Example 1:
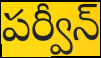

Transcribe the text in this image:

పర్వీన్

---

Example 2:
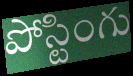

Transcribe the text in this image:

పోస్టింగు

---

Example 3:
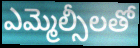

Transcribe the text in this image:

ఎమ్మెల్సీలతో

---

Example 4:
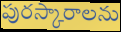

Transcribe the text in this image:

పురస్కారాలను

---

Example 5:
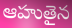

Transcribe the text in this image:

ఆహుతైన